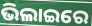
ଭିଲାଇରେ